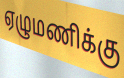
ஏழுமணிக்கு